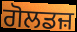
ਗੋਲਡਜ਼